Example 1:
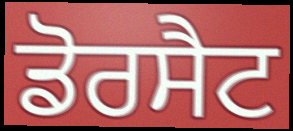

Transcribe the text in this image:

ਡੋਰਸੈਟ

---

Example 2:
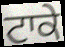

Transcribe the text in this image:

ਟਾਕੇ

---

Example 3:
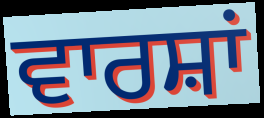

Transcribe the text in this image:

ਵਾਰਸ਼ਾਂ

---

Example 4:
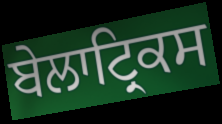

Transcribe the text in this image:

ਬੇਲਾਟ੍ਰਿਕਸ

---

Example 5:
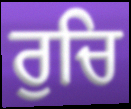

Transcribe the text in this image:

ਰੁਚਿ